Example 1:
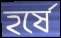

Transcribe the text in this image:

হর্ষে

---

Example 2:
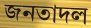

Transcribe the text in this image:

জনতাদল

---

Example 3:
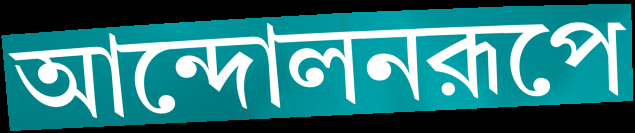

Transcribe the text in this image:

আন্দোলনরূপে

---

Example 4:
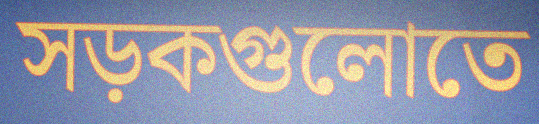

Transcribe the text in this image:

সড়কগুলোতে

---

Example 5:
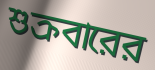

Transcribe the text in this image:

শুক্রবারের